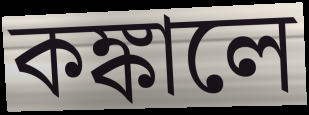
কঙ্কালে